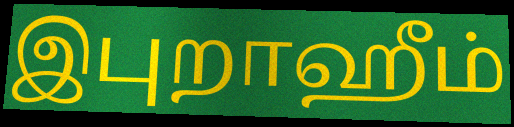
இபுறாஹீம்